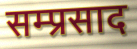
सम्प्रसाद